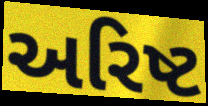
અરિષ્ટ